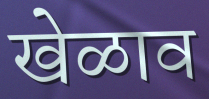
खेळाव